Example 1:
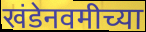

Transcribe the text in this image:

खंडेनवमीच्या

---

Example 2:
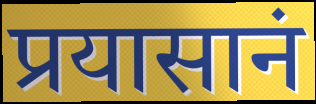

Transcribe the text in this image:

प्रयासानं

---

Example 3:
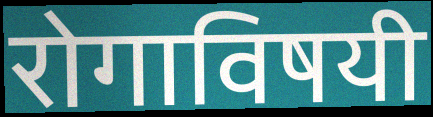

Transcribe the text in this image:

रोगाविषयी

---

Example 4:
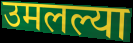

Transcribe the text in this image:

उमलल्या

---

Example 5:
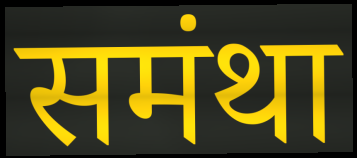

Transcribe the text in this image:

समंथा